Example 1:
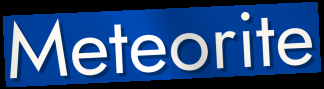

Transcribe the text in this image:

Meteorite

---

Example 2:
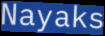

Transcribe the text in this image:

Nayaks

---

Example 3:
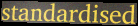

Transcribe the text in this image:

standardised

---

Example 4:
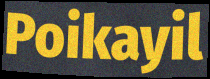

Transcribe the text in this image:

Poikayil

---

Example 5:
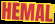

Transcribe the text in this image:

HEMAL